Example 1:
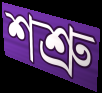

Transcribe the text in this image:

শশ্রু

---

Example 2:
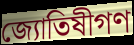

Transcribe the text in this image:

জ্যোতিষীগণ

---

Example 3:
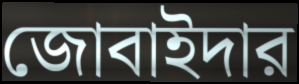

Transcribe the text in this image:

জোবাইদার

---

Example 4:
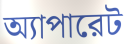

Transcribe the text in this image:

অ্যাপারেট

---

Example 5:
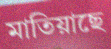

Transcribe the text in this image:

মাতিয়াছে